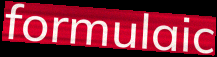
formulaic